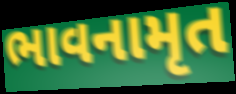
ભાવનામૃત